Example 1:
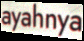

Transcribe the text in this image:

ayahnya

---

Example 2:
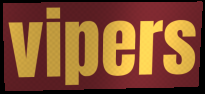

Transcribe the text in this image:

vipers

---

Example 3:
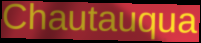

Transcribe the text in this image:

Chautauqua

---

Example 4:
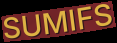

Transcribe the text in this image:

SUMIFS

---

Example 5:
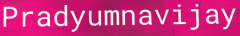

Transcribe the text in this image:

Pradyumnavijay